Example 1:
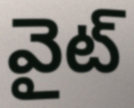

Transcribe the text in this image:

వైట్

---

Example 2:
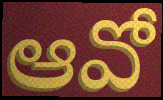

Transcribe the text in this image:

ఆవో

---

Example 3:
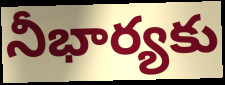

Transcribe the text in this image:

నీభార్యకు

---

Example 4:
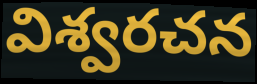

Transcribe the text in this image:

విశ్వరచన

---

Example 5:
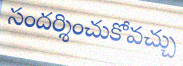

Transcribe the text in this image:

సందర్శించుకోవచ్చు